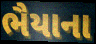
ભૈયાના